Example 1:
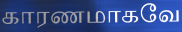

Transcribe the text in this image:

காரணமாகவே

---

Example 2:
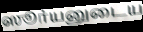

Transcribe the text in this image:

ஸூர்யனுடைய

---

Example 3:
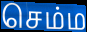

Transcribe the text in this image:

செம்ம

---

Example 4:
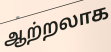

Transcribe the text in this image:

ஆற்றலாக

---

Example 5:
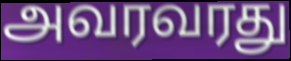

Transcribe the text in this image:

அவரவரது